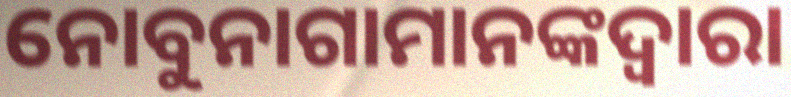
ନୋବୁନାଗାମାନଙ୍କଦ୍ୱାରା